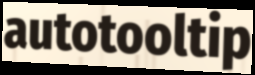
autotooltip